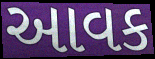
આવક